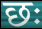
छः